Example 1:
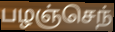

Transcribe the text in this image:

பழஞ்செந்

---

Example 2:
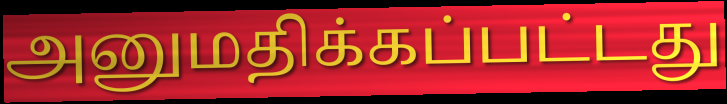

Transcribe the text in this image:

அனுமதிக்கப்பட்டது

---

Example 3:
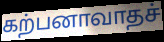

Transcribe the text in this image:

கற்பனாவாதச்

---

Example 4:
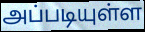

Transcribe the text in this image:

அப்படியுள்ள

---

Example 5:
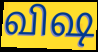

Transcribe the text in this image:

விஷ